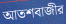
আতশবাজীর